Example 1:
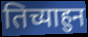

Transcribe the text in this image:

तिच्याहुन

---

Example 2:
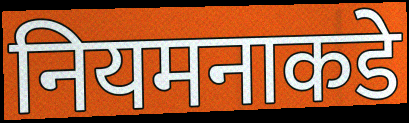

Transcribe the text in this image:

नियमनाकडे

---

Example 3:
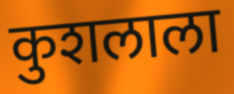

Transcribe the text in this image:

कुशलाला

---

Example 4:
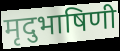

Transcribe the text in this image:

मृदुभाषिणी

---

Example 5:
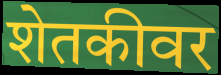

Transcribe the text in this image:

शेतकीवर